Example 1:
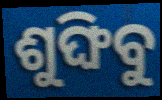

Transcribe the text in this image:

ଶୁଙ୍ଘିବୁ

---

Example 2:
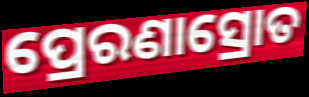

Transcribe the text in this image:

ପ୍ରେରଣାସ୍ରୋତ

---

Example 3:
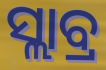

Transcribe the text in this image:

ସ୍ଲାବ୍ର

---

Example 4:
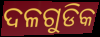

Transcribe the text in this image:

ଦଳଗୁଡିକ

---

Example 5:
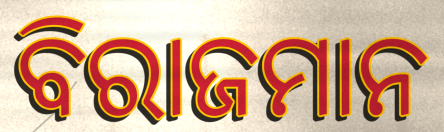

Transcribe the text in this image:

ବିରାଜମାନ